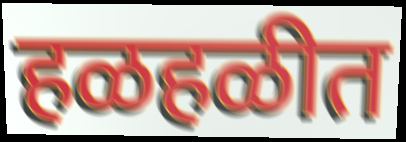
हळहळीत